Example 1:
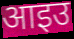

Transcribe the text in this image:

आइउ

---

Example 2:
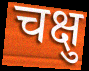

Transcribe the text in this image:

चक्षु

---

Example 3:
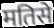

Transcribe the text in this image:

मतिसे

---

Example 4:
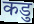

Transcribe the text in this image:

कडु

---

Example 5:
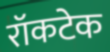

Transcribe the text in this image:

रॉकटेक